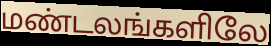
மண்டலங்களிலே